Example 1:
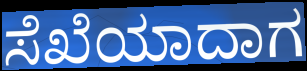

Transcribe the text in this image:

ಸೆಖೆಯಾದಾಗ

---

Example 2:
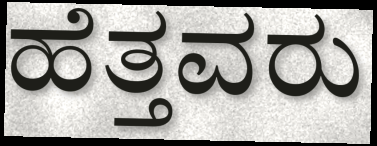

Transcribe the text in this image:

ಹೆತ್ತವರು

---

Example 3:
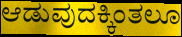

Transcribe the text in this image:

ಆಡುವುದಕ್ಕಿಂತಲೂ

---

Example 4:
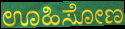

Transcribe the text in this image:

ಊಹಿಸೋಣ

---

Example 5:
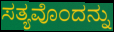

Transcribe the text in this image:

ಸತ್ಯವೊಂದನ್ನು